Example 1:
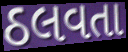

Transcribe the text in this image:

ઠલવતા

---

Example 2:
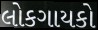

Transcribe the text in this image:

લોકગાયકો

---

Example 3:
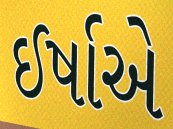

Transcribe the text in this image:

ઈર્ષાએ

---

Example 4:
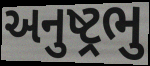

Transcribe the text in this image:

અનુષ્ટ્રભુ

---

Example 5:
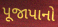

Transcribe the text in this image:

પૂજાપાનો